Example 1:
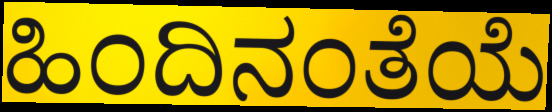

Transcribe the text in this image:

ಹಿಂದಿನಂತೆಯೆ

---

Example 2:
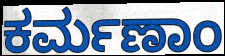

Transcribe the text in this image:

ಕರ್ಮಣಾಂ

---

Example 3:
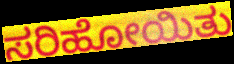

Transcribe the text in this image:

ಸರಿಹೋಯಿತು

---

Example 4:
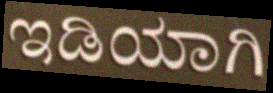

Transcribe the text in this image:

ಇಡಿಯಾಗಿ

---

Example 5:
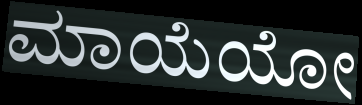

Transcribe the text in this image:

ಮಾಯೆಯೋ